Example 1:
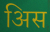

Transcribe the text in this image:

अिस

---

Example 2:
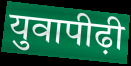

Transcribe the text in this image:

युवापीढ़ी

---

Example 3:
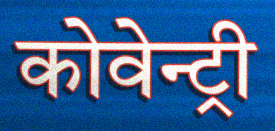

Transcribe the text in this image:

कोवेन्ट्री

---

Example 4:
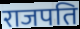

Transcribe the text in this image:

राजपति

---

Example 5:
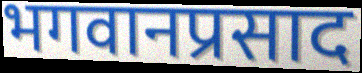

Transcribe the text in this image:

भगवानप्रसाद